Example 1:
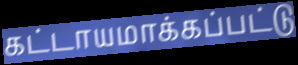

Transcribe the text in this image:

கட்டாயமாக்கப்பட்டு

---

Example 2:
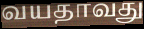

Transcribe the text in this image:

வயதாவது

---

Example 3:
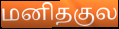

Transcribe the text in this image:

மனிதகுல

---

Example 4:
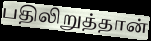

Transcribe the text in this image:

பதிலிறுத்தான்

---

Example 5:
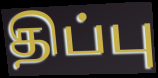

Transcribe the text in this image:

திப்பு